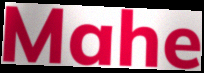
Mahe